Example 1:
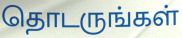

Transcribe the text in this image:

தொடருங்கள்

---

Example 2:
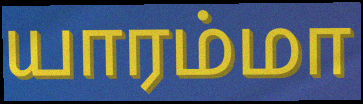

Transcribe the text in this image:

யாரம்மா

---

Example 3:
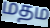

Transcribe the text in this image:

மதம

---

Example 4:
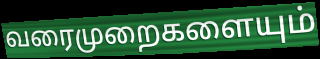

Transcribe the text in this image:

வரைமுறைகளையும்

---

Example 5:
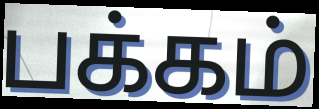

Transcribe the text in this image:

பக்கம்